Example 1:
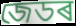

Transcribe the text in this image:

জেডৰ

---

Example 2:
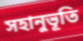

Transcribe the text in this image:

সহানুভূতি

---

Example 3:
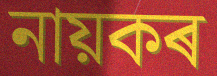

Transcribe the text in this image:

নায়কৰ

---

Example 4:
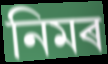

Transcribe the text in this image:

নিমৰ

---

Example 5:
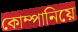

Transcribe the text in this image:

কোম্পানিয়ে